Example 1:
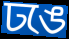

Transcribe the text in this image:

ঢঙে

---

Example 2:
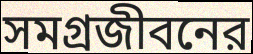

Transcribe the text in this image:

সমগ্রজীবনের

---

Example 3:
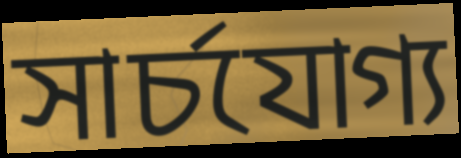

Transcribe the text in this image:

সার্চযোগ্য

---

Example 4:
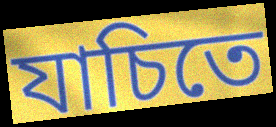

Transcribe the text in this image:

যাচিতে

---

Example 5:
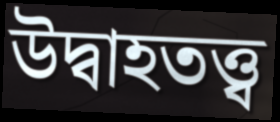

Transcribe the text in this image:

উদ্বাহতত্ত্ব